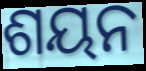
ଶୟନ